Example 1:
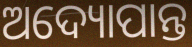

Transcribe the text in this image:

ଅଦ୍ୟୋପାନ୍ତ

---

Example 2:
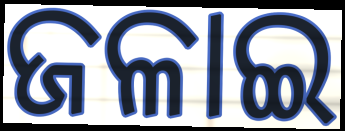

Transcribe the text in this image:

ଜଳାଇ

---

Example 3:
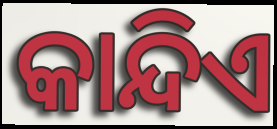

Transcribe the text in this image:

କାନ୍ଦିଏ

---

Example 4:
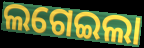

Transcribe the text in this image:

ଲଗେଇଲା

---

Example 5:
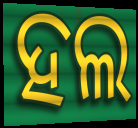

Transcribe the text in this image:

ହଲ